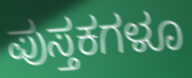
ಪುಸ್ತಕಗಳೂ